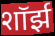
शॉर्झ